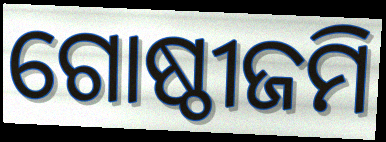
ଗୋଷ୍ଠୀଜମି